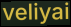
veliyai